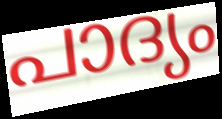
പാദ്യം